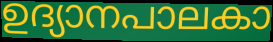
ഉദ്യാനപാലകാ